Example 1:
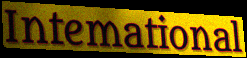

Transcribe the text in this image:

Intemational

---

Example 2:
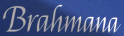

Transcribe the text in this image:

Brahmana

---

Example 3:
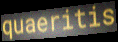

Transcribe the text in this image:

quaeritis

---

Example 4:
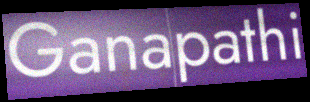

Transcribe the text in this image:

Ganapathi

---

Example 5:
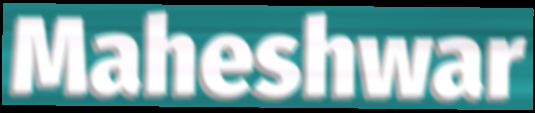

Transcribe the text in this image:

Maheshwar